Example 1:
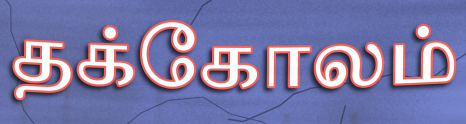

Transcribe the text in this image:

தக்கோலம்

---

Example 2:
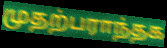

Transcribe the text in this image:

முதற்பராந்தக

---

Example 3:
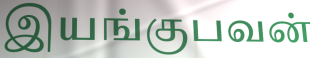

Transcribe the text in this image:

இயங்குபவன்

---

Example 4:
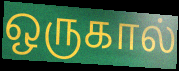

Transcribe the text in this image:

ஒருகால்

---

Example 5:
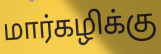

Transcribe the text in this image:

மார்கழிக்கு